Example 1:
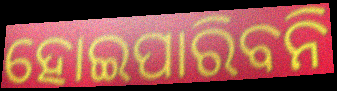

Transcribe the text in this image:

ହୋଇପାରିବନି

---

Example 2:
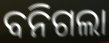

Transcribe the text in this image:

ବନିଗଲା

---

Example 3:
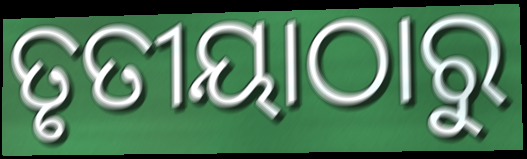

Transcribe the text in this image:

ତୃତୀୟାଠାରୁ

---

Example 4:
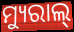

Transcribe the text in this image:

ମ୍ୟୁରାଲ୍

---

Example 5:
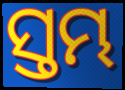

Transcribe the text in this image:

ସ୍ତମ୍ଭ